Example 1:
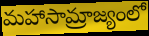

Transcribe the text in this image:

మహాసామ్రాజ్యంలో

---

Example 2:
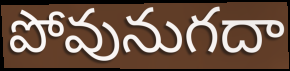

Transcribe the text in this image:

పోవునుగదా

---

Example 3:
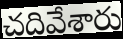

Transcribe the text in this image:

చదివేశారు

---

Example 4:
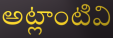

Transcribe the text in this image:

అట్లాంటివి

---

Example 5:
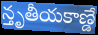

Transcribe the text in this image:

న్తృతీయకాణ్డే